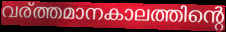
വര്ത്തമാനകാലത്തിന്റെ